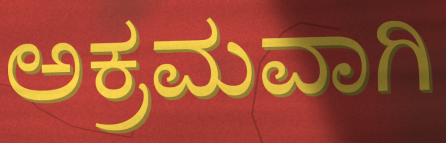
ಅಕ್ರಮವಾಗಿ